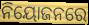
ନିୟୋଜନରେ